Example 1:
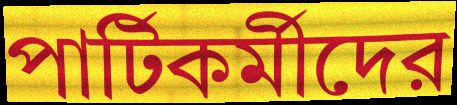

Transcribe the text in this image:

পার্টিকর্মীদের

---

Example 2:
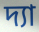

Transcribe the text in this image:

দ্যা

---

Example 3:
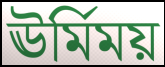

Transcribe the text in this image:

ঊর্মিময়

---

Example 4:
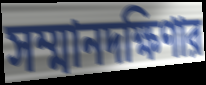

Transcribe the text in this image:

সম্মানদক্ষিণার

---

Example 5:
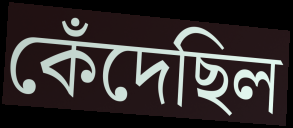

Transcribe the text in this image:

কেঁদেছিল